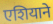
एशियाने